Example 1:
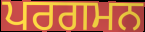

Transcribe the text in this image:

ਪਰਗਮਨ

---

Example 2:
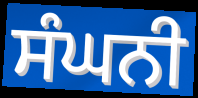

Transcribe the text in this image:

ਸੰਘਨੀ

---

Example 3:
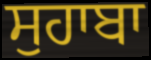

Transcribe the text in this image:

ਸੁਹਾਬਾ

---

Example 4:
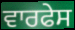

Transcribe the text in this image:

ਵਾਰਫੇਸ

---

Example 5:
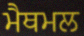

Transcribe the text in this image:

ਮੈਥਮਲ